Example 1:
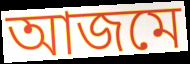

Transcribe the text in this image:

আজমে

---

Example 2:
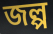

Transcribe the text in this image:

জল্প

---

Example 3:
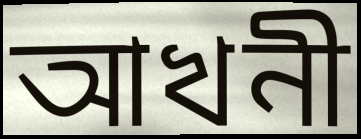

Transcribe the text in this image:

আখনী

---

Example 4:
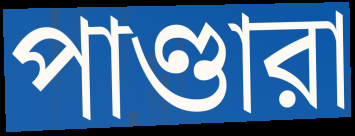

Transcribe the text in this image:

পাণ্ডারা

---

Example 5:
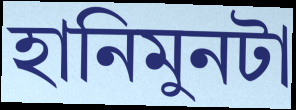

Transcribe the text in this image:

হানিমুনটা